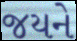
જયને